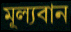
মূল্যবান